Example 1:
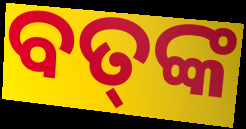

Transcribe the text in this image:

ବତ୍‍ଙ୍କ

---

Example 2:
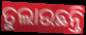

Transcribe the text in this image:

ତୁଲାଉଛନ୍ତି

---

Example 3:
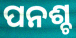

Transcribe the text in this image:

ପନଶ୍ଚ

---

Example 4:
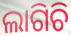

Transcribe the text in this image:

ଲାଗିଚି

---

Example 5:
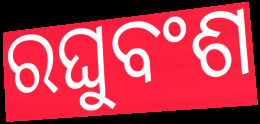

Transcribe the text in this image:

ରଘୁବଂଶ